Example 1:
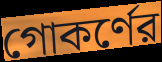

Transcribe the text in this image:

গোকর্ণের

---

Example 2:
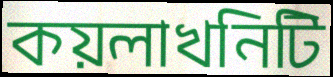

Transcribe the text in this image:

কয়লাখনিটি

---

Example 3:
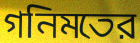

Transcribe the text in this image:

গনিমতের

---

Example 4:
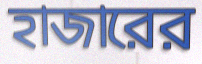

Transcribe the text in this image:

হাজারের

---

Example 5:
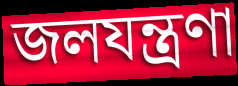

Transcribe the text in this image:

জলযন্ত্রণা